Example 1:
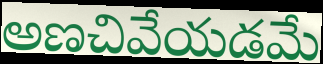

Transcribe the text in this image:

అణచివేయడమే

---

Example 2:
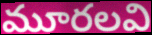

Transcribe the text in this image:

మూరలవి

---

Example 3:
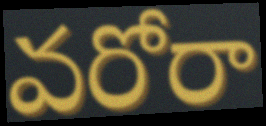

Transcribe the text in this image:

వరోరా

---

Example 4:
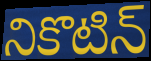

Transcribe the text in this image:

నికొటిన్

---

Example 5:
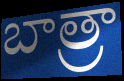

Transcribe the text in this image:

బాత్రా